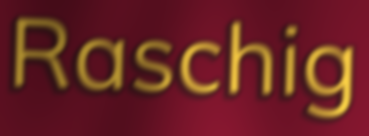
Raschig